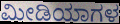
ಮೀಡಿಯಾಗಳ